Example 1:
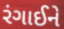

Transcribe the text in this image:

રંગાઈને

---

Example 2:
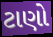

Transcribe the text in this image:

ટાણો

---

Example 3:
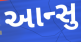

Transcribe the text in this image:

આન્સુ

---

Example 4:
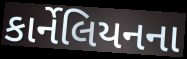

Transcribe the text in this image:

કાર્નેલિયનના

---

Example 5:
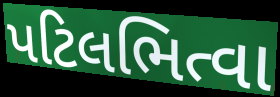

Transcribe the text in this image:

પટિલભિત્વા